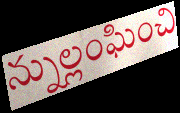
న్నుల్లంఘించి